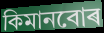
কিমানবোৰ